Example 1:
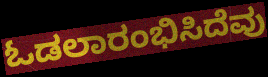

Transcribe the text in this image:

ಓಡಲಾರಂಭಿಸಿದೆವು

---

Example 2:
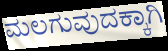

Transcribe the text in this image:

ಮಲಗುವುದಕ್ಕಾಗಿ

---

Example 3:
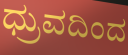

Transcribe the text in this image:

ಧ್ರುವದಿಂದ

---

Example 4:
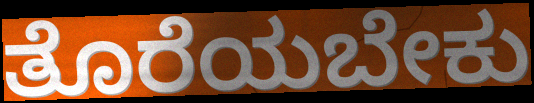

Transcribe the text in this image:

ತೊರೆಯಬೇಕು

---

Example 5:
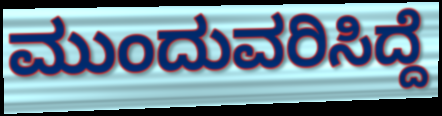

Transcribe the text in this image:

ಮುಂದುವರಿಸಿದ್ದೆ